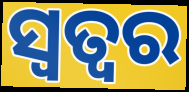
ସ୍ୱତ୍ୱର